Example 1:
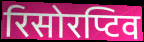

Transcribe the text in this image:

रिसोरप्टिव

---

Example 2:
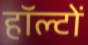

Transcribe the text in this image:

हॉल्टों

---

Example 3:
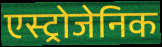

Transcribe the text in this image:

एस्ट्रोजेनिक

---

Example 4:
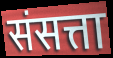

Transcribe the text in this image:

संसत्ता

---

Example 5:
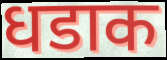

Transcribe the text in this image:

धडाक